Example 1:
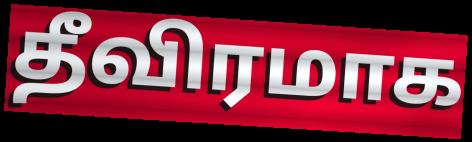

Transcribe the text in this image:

தீவிரமாக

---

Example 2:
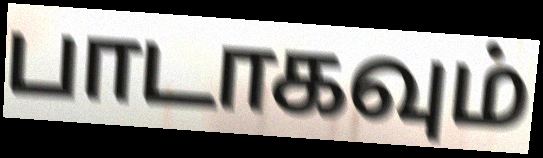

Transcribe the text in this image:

பாடாகவும்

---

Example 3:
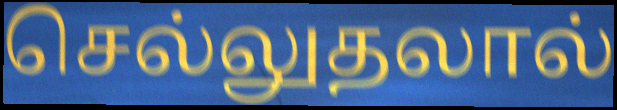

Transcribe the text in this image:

செல்லுதலால்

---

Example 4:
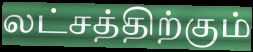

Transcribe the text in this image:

லட்சத்திற்கும்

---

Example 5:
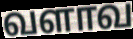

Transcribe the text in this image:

வளாவ